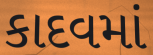
કાદવમાં